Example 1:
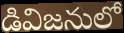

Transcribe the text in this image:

డివిజనులో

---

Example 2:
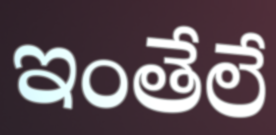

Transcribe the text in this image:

ఇంతేలే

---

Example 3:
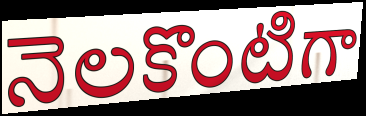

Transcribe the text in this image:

నెలకొంటిగా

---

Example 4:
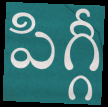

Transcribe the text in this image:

పిగ్గీ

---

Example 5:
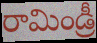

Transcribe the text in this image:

రామిండ్రీ